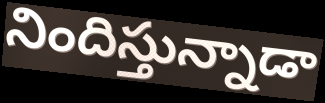
నిందిస్తున్నాడా